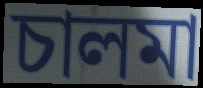
চালমা